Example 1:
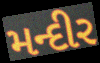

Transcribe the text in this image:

મન્દીર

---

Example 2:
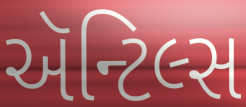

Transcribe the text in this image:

ઍન્ટિલ્સ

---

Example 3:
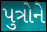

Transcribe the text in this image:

પુત્રોને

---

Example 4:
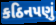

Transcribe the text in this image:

કઠિનપણું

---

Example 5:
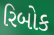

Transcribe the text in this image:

રિબોક